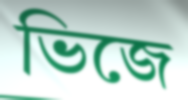
ভিজে